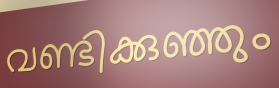
വണ്ടിക്കുഞ്ഞും